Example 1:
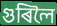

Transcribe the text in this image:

গুৰিলৈ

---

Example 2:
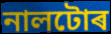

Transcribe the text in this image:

নালটোৰ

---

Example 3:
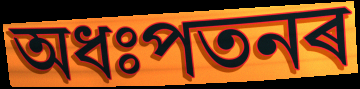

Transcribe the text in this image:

অধঃপতনৰ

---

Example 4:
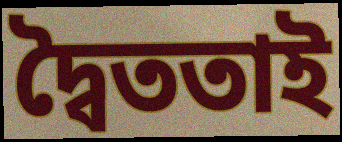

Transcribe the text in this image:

দ্বৈততাই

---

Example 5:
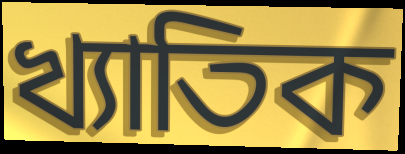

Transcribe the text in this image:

খ্যাতিক